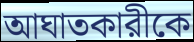
আঘাতকারীকে